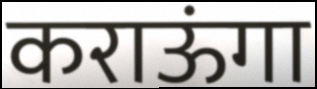
कराऊंगा